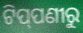
ଟିପ୍‌ପଣୀରୁ